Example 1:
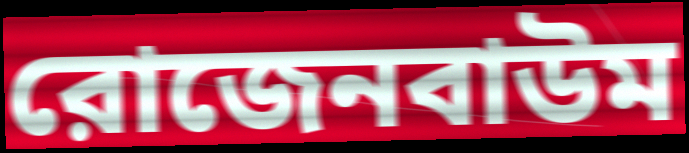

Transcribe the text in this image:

রোজেনবাউম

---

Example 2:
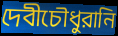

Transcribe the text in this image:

দেবীচৌধুরানি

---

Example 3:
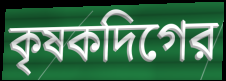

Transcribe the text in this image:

কৃষকদিগের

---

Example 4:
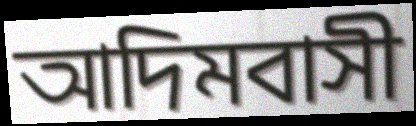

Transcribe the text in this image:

আদিমবাসী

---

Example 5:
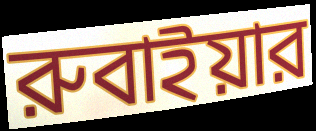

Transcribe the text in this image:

রুবাইয়ার